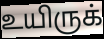
உயிருக்